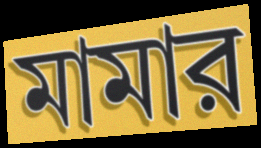
মামার